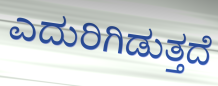
ಎದುರಿಗಿಡುತ್ತದೆ